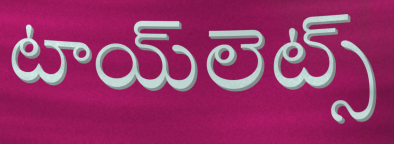
టాయ్‌లెట్స్